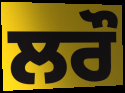
ਲਰੌ